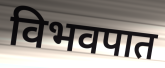
विभवपात